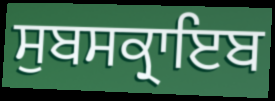
ਸੁਬਸਕ੍ਰਾਇਬ